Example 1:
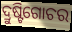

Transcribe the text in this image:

ଦ୍ରୁଷ୍ଟିଗୋଚର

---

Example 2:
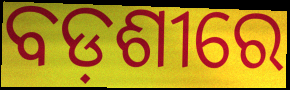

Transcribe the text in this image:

ବଡ଼ଶୀରେ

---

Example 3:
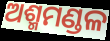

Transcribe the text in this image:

ଅଶ୍ମମଣ୍ଡଳ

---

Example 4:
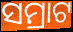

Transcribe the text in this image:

ସମ୍ରାଟ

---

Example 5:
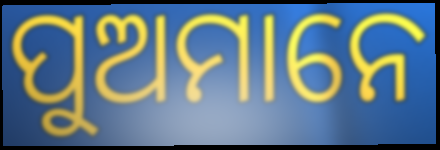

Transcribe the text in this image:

ପୁଅମାନେ